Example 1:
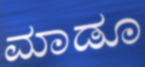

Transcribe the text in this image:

ಮಾಡೂ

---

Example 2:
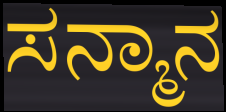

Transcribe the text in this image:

ಸನ್ಮಾನ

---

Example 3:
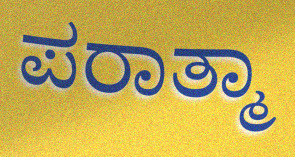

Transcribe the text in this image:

ಪರಾತ್ಮಾ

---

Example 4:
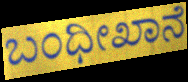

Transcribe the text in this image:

ಬಂಧೀಖಾನೆ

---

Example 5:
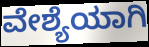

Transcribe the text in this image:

ವೇಶ್ಯೆಯಾಗಿ